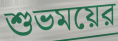
শুভময়ের